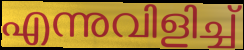
എന്നുവിളിച്ച്